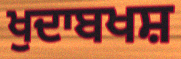
ਖੁਦਾਬਖਸ਼